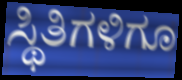
ಸ್ಥಿತಿಗಳಿಗೂ